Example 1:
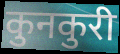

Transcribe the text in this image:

कुनकुरी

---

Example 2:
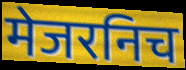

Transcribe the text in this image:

मेजरनिच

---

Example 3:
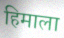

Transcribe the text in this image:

हिमाला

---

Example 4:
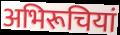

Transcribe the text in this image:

अभिरूचियां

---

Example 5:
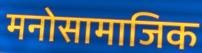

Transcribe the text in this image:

मनोसामाजिक